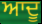
ਆਦੂ